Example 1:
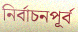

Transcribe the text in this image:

নির্বাচনপূর্ব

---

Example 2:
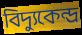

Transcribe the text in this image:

বিদ্যুকেন্দ্র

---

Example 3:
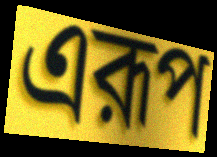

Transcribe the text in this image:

এরূপ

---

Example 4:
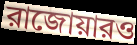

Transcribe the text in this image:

রাজোয়ারও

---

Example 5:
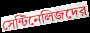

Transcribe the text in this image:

সেন্টিনেলিজদের